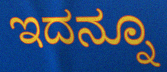
ಇದನ್ನೂ